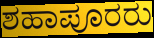
ಶಹಾಪೂರರು